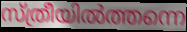
സ്ത്രീയിൽത്തന്നെ